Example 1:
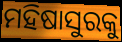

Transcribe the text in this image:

ମହିଷାସୁରକୁ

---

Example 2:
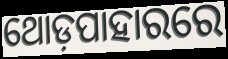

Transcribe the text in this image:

ଥୋଡ଼ପାହାରରେ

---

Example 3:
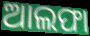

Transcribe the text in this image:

ଆଲଫା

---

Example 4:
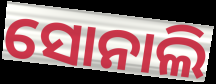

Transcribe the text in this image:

ସୋନାଲି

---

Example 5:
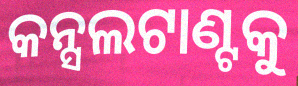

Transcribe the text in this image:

କନ୍ସଲଟାଣ୍ଟକୁ